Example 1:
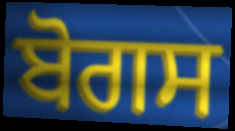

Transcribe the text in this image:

ਬੋਗਸ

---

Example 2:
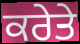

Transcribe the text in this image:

ਕਰੇਤੇ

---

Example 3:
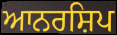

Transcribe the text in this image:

ਆਨਰਸ਼ਿਪ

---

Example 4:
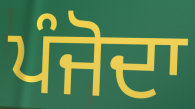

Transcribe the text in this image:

ਪੰਜੋਦਾ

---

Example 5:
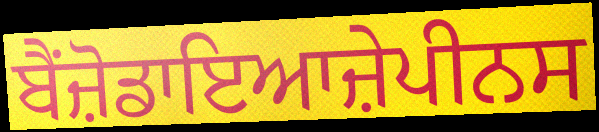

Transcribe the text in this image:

ਬੈਂਜ਼ੋਡਾਇਆਜ਼ੇਪੀਨਸ